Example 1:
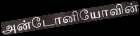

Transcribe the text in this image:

அன்டோனியோவின்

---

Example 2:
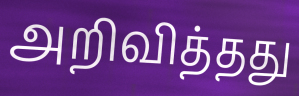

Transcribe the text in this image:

அறிவித்தது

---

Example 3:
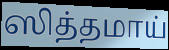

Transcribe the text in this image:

ஸித்தமாய்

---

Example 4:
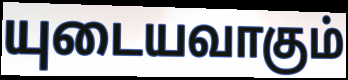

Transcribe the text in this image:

யுடையவாகும்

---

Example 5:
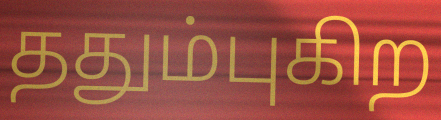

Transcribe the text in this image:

ததும்புகிற